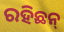
ରହିଛନ୍